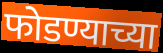
फोडण्याच्या